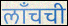
लाँचची